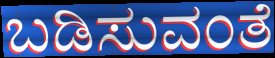
ಬಡಿಸುವಂತೆ